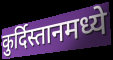
कुर्दिस्तानमध्ये